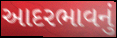
આદરભાવનું